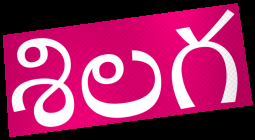
శిలగ